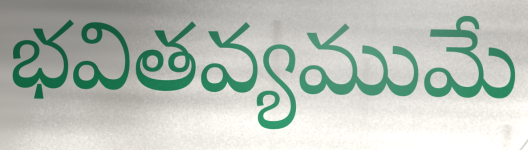
భవితవ్యముమే